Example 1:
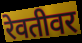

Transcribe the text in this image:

रेवतीवर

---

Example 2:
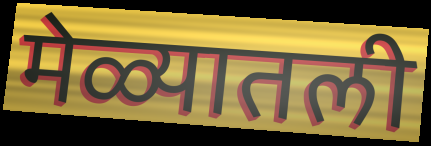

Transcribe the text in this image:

मेळ्यातली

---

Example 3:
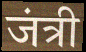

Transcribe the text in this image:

जंत्री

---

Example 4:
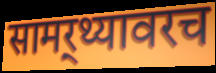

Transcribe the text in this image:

सामर्थ्यावरच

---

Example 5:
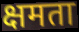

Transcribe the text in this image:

क्षमता